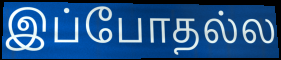
இப்போதல்ல